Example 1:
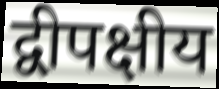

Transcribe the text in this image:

द्वीपक्षीय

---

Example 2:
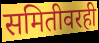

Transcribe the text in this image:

समितीवरही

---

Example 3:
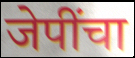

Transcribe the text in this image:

जेपींचा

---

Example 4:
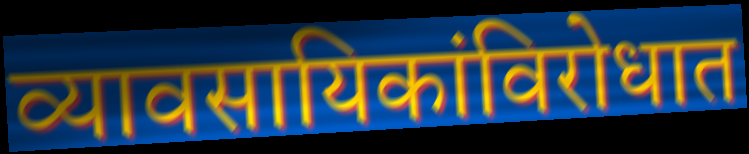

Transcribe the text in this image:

व्यावसायिकांविरोधात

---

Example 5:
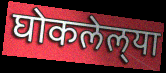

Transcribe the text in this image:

घोकलेल्या